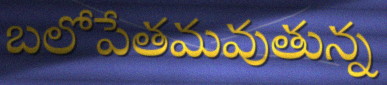
బలోపేతమవుతున్న